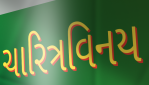
ચારિત્રવિનય